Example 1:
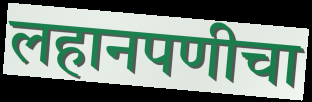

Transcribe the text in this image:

लहानपणीचा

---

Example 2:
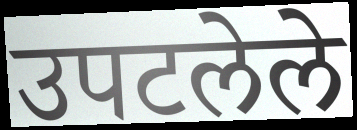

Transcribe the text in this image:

उपटलेले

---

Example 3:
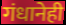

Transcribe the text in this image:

गंधानेही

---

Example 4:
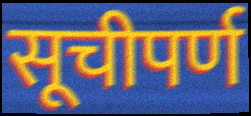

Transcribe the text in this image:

सूचीपर्ण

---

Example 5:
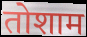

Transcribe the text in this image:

तोशाम